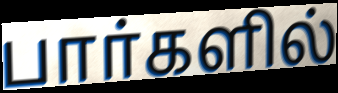
பார்களில்